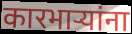
कारभाऱ्यांना